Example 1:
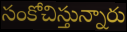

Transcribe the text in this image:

సంకోచిస్తున్నారు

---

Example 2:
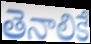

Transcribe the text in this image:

తెనాలికే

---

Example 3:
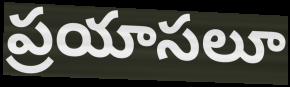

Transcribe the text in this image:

ప్రయాసలూ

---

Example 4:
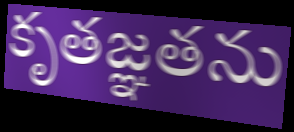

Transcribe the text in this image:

కృతజ్ఞతను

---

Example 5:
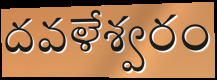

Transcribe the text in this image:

దవళేశ్వరం